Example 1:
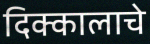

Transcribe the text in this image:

दिक्कालाचे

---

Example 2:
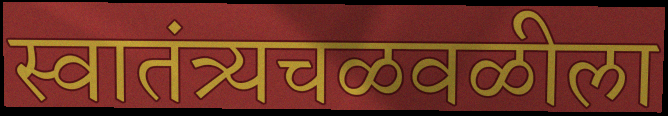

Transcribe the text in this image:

स्वातंत्र्यचळवळीला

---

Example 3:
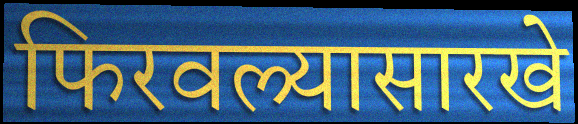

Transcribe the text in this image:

फिरवल्यासारखे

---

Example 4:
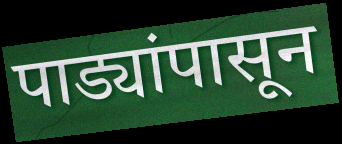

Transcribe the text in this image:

पाड्यांपासून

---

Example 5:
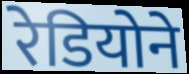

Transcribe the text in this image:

रेडियोने